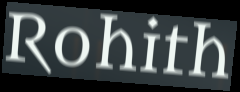
Rohith